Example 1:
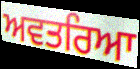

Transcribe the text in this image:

ਅਵਤਰਿਆ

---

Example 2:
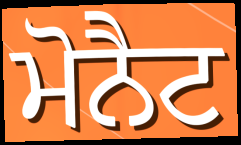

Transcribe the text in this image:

ਮੋਨੈਟ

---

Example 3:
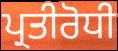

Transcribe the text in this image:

ਪ੍ਰਤੀਰੋਧੀ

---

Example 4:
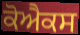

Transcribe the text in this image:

ਕੋਐਕਸ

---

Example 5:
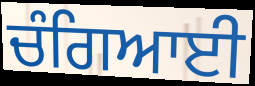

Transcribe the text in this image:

ਚੰਗਿਆਈ